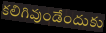
కలిగివుండేందుకు